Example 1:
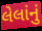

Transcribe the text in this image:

લેલાંનું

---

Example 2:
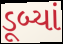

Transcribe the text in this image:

ડૂબ્યાં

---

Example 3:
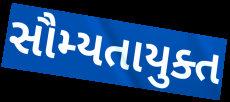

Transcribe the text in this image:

સૌમ્યતાયુક્ત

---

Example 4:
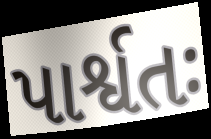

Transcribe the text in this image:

પાર્શ્વતઃ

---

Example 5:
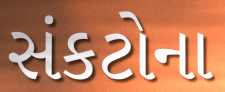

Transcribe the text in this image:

સંકટોના